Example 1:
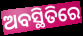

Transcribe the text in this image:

ଅବସ୍ଥିତିରେ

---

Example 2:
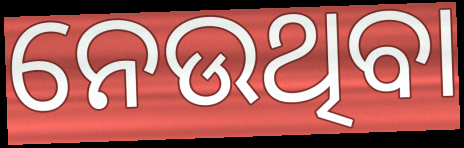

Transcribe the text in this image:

ନେଉଥିବା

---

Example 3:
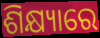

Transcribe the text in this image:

ଶିକ୍ଷ୍ୟାରେ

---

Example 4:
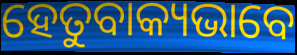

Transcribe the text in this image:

ହେତୁବାକ୍ୟଭାବେ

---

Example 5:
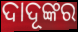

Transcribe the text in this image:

ଦାଦୂଙ୍କର